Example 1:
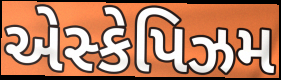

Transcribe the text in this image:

એસ્કેપિઝમ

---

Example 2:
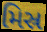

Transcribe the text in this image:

મિસ્ર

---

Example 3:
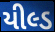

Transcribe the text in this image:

યીલ્ડ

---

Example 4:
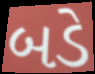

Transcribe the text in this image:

બડે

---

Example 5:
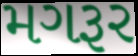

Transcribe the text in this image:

મગરૂર